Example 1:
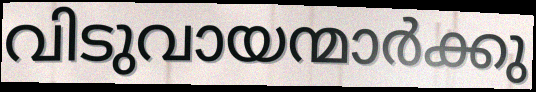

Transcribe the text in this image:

വിടുവായന്മാർക്കു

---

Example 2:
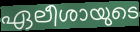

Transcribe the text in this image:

ഏലീശായുടെ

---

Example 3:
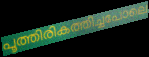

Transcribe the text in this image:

പൂത്തിരികത്തിച്ചപോലെ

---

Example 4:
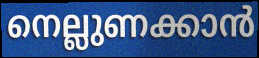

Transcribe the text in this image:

നെല്ലുണക്കാൻ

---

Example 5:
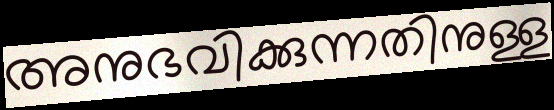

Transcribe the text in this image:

അനുഭവിക്കുന്നതിനുള്ള